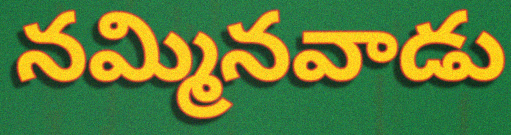
నమ్మినవాడు